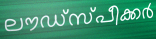
ലൗഡ്സ്പീക്കർ